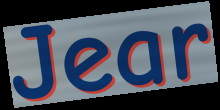
Jear